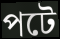
পটে